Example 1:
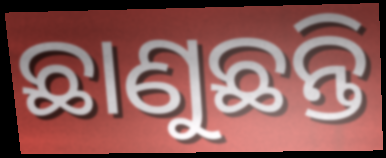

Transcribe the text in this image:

ଛାଣୁଛନ୍ତି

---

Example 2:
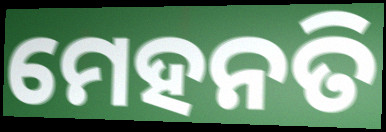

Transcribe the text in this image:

ମେହନତି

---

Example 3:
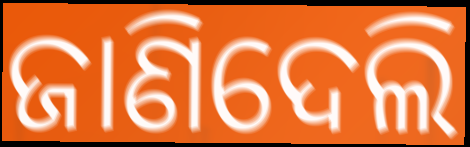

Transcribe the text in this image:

ଜାଣିଦେଲି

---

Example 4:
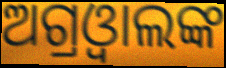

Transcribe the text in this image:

ଅଗ୍ରଓ୍ବାଲଙ୍କ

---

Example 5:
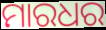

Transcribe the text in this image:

ମାରଧର